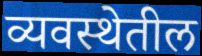
व्यवस्थेतील